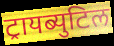
ट्रायब्युटिल